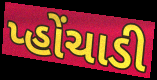
પ્હોંચાડી